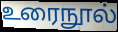
உரைநூல்